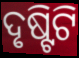
ଦୃଷ୍ଟିଟି